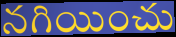
నగియించు